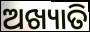
ଅଖ୍ୟାତି